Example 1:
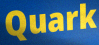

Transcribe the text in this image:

Quark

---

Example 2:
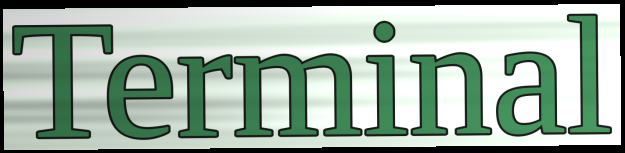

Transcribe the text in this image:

Terminal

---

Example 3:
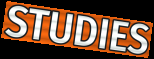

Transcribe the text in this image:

STUDIES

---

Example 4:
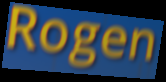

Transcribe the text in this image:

Rogen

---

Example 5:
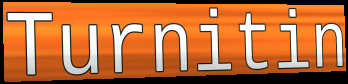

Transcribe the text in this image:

Turnitin